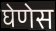
घेणेस